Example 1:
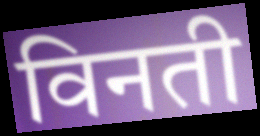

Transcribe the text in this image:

विनती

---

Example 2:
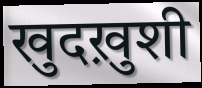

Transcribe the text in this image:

खुदख़ुशी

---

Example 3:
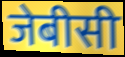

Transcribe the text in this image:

जेबीसी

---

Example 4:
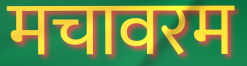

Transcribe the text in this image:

मचावरम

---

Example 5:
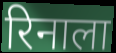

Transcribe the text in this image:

रिनाला